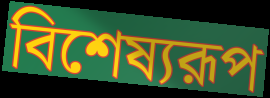
বিশেষ্যরূপ